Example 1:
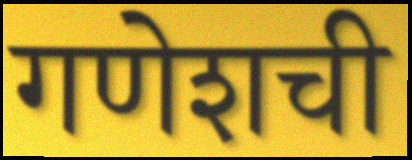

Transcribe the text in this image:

गणेशची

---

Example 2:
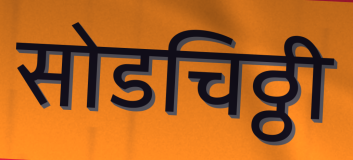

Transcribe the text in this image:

सोडचिठ्ठी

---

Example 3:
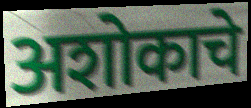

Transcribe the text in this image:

अशोकाचे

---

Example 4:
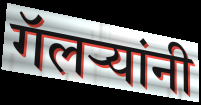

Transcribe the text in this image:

गॅलऱ्यांनी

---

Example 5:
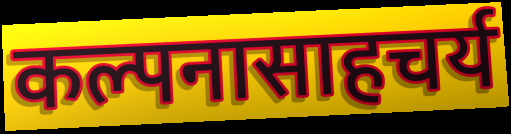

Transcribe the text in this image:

कल्पनासाहचर्य